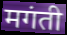
मगंती